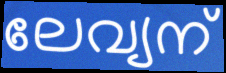
ലേവ്യന്